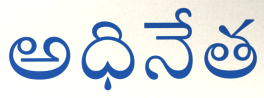
అధినేత